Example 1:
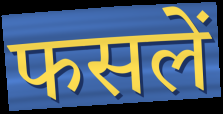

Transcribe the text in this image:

फसलें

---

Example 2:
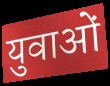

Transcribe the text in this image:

युवाओं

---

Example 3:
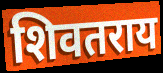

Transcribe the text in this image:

शिवतराय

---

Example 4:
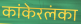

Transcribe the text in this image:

कांकेरलंका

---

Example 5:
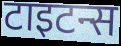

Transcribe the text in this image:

टाइटन्स